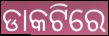
ଡାକଟିରେ